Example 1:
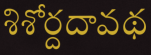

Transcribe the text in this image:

శిశోర్దదావథ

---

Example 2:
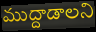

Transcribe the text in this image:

ముద్దాడాలని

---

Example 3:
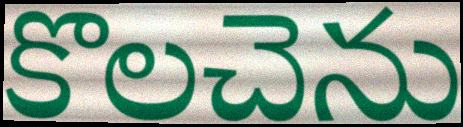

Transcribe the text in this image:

కొలచెను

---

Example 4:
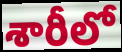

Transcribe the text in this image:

శారీలో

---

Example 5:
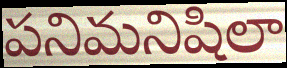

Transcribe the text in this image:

పనిమనిషిలా